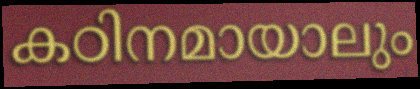
കഠിനമായാലും